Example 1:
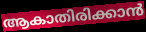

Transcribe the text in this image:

ആകാതിരിക്കാൻ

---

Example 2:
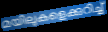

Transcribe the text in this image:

മയിലുകളെക്കുറിച്ച്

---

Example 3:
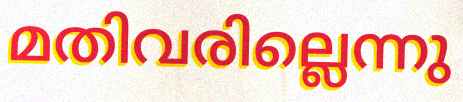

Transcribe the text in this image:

മതിവരില്ലെന്നു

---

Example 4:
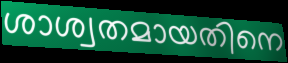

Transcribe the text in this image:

ശാശ്വതമായതിനെ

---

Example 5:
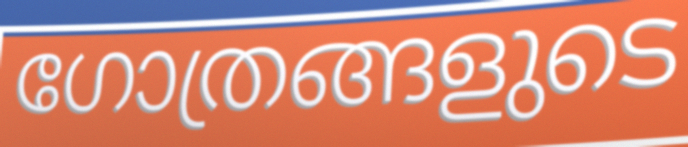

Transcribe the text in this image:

ഗോത്രങ്ങളുടെ